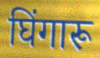
घिंगारू